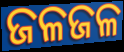
ଜଳଜଳ